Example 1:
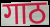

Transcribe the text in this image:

गाठ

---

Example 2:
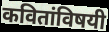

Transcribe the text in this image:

कवितांविषयी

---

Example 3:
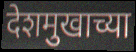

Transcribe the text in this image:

देशमुखाच्या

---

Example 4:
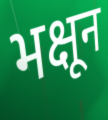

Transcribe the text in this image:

भक्षून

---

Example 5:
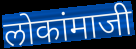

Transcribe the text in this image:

लोकांमाजी